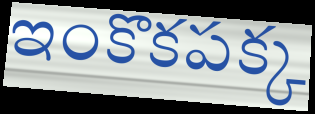
ఇంకొకపక్క